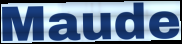
Maude